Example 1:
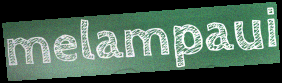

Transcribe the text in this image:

melampaui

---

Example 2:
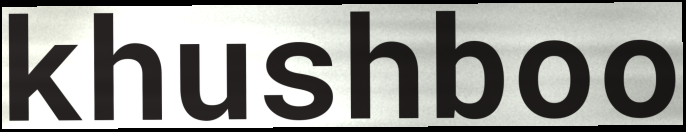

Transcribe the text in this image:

khushboo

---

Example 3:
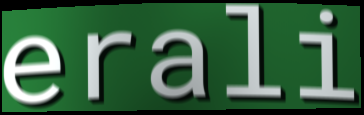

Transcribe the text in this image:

erali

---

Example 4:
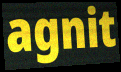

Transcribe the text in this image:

agnit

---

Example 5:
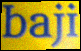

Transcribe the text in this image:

baji